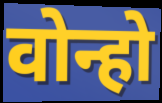
वोन्हो